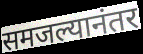
समजल्यानंतर